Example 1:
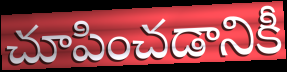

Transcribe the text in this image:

చూపించడానికీ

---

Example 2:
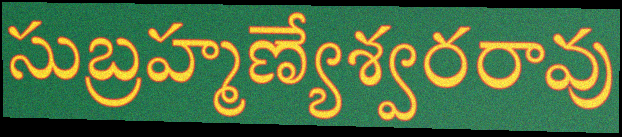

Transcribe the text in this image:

సుబ్రహ్మణ్యేశ్వరరావు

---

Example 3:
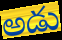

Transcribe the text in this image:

అడు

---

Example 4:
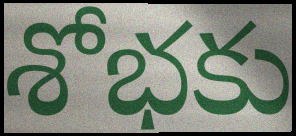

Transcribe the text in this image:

శోభకు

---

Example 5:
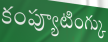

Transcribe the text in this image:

కంప్యూటింగ్కు